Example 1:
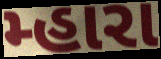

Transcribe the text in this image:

મ્હારા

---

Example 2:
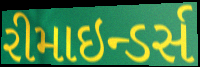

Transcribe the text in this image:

રીમાઇન્ડર્સ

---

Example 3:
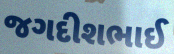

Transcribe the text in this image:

જગદીશભાઈ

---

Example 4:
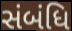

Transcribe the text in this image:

સંબંધિ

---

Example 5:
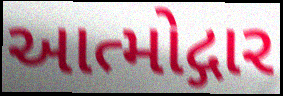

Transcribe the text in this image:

આત્મોદ્ગાર